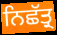
ਨਿਛੱਤ੍ਰ੍ਰ